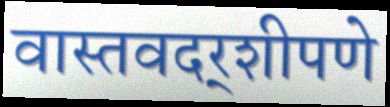
वास्तवदर्शीपणे